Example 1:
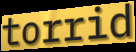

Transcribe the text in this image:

torrid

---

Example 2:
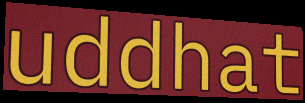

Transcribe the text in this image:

uddhat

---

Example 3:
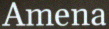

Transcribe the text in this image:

Amena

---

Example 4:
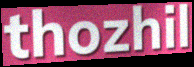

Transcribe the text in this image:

thozhil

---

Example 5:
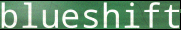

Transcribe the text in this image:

blueshift